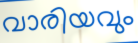
വാരിയവും